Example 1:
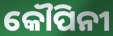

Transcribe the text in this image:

କୌପିନୀ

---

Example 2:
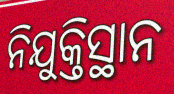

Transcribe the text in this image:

ନିଯୁକ୍ତିସ୍ଥାନ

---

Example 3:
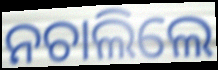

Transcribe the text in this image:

ନଚାଲିଲେ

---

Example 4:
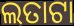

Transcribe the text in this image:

ଲତାଟା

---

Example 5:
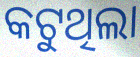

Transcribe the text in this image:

କଟୁଥିଲା